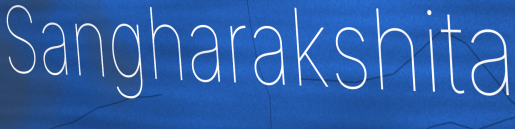
Sangharakshita